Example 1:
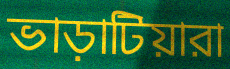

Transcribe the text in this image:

ভাড়াটিয়ারা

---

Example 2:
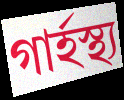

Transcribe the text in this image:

গার্হস্থ্য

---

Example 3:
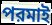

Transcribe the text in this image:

পরমাই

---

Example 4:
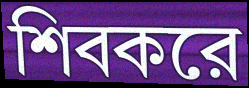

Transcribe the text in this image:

শিবকরে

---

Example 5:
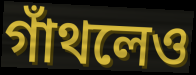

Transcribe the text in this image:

গাঁথলেও